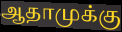
ஆதாமுக்கு